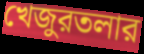
খেজুরতলার